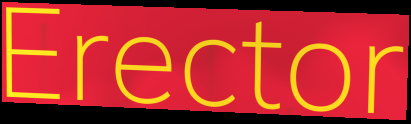
Erector